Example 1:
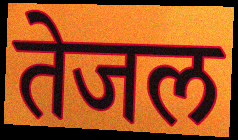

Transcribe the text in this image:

तेजल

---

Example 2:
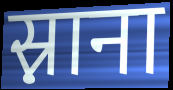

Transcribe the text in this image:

स्नाना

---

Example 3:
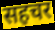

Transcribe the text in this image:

सहचर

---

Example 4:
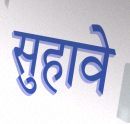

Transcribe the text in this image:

सुहावे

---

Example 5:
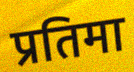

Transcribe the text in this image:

प्रतिमा